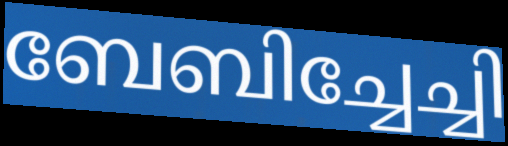
ബേബിച്ചേച്ചി